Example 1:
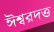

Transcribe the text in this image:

ঈশ্বরদত্ত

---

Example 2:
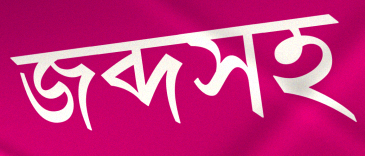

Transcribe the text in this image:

জব্দসহ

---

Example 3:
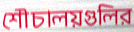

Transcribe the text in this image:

শৌচালয়গুলির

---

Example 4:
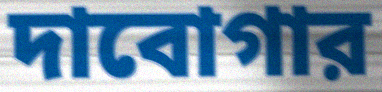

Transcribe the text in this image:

দাবোগার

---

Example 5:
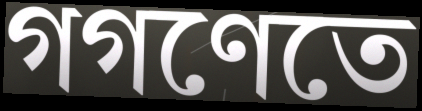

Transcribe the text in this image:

গগণেতে